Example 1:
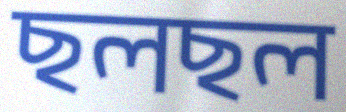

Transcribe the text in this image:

ছলছল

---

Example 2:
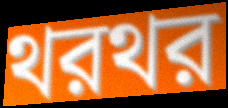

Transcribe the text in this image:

থরথর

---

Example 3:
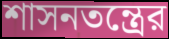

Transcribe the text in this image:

শাসনতন্ত্রের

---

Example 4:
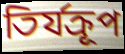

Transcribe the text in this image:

তির্যক্রূপ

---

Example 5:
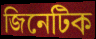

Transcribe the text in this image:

জিনেটিক